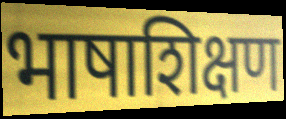
भाषाशिक्षण